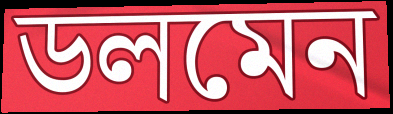
ডলমেন